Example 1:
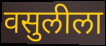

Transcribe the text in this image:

वसुलीला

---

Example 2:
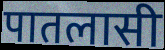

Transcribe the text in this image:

पातलासी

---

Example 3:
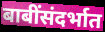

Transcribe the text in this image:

बाबींसंदर्भात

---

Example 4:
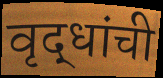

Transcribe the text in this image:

वृद्धांची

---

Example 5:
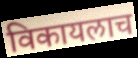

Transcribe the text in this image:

विकायलाच